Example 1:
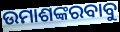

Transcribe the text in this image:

ଉମାଶଙ୍କରବାବୁ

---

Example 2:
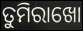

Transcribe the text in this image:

ତୁମିରାଖୋ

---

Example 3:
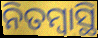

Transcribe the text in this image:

ନିତମ୍ବାସ୍ଥି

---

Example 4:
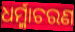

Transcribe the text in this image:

ଧର୍ମ୍ମାଚରଣ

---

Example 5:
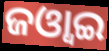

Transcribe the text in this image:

ଜଓ୍ବାଇ